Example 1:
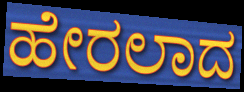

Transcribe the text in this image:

ಹೇರಲಾದ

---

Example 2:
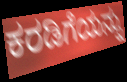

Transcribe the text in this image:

ಕರಡಿಗೆಯನ್ನು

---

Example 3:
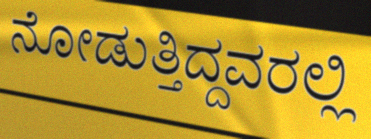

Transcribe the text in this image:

ನೋಡುತ್ತಿದ್ದವರಲ್ಲಿ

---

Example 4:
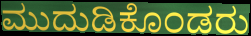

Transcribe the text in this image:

ಮುದುಡಿಕೊಂಡರು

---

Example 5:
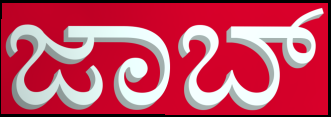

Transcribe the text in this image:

ಜಾಬ್